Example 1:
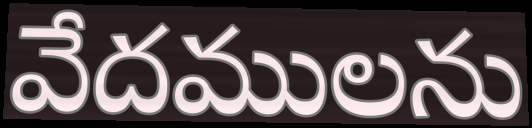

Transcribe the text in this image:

వేదములను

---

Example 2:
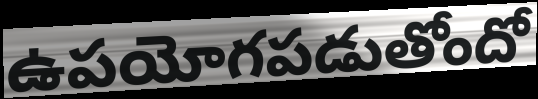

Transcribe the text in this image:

ఉపయోగపడుతోందో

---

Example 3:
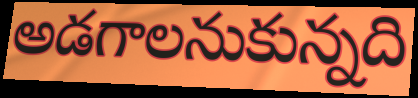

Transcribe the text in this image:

అడగాలనుకున్నది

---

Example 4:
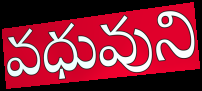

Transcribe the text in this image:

వధువుని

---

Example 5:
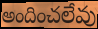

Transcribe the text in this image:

అందించలేవు